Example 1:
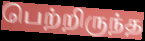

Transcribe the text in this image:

பெற்றிருந்த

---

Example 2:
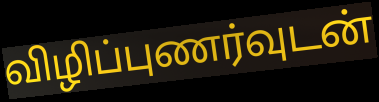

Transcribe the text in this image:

விழிப்புணர்வுடன்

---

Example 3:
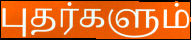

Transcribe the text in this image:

புதர்களும்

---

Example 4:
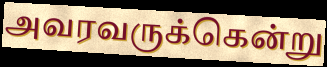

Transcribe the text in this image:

அவரவருக்கென்று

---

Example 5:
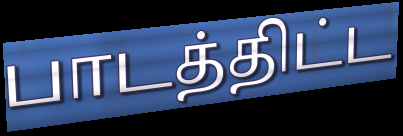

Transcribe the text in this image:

பாடத்திட்ட